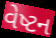
વેષ્ટન